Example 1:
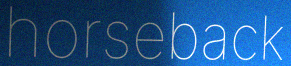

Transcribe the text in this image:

horseback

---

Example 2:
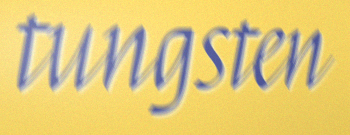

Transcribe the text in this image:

tungsten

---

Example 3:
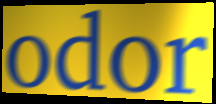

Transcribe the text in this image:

odor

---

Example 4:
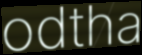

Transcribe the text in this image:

odtha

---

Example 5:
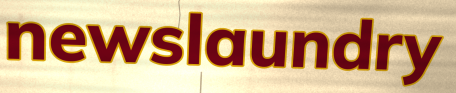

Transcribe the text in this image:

newslaundry